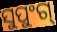
ସୁପୁଂଗ୍